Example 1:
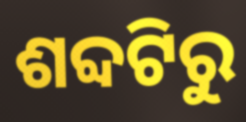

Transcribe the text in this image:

ଶବ୍ଦଟିରୁ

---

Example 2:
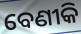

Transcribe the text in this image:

ବେଣୀକି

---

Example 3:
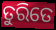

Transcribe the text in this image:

ତୁରିତେ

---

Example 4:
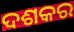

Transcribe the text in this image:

ଦଶକର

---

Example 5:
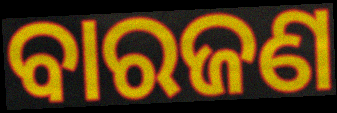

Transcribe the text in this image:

ବାରଜଣ